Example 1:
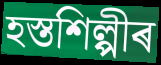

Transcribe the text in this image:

হস্তশিল্পীৰ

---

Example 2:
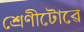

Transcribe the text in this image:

শ্ৰেণীটোৱে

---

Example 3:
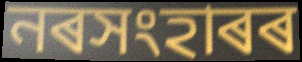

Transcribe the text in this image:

নৰসংহাৰৰ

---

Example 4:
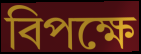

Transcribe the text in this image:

বিপক্ষে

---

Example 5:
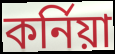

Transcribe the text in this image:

কৰ্নিয়া